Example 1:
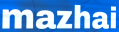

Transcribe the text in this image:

mazhai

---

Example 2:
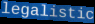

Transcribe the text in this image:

legalistic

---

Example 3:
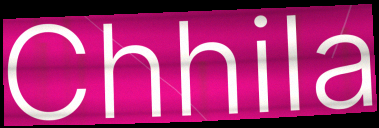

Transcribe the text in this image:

Chhila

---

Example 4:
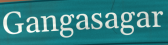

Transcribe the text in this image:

Gangasagar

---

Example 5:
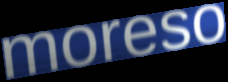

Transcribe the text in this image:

moreso